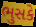
ભુસકે